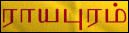
ராயபுரம்